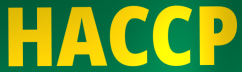
HACCP